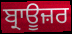
ਬ੍ਰਾਊਜ਼ਰ